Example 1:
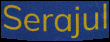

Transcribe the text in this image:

Serajul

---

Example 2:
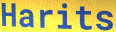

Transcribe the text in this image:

Harits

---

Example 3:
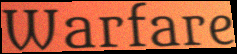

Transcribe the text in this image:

Warfare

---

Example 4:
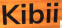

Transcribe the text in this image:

Kibii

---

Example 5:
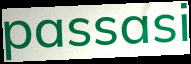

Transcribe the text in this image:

passasi